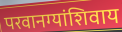
परवानग्यांशिवाय